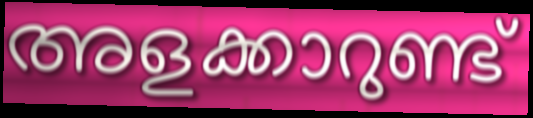
അളക്കാറുണ്ട്